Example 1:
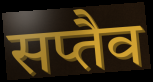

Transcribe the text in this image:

सप्तैव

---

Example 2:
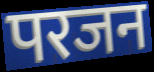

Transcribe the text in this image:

परजन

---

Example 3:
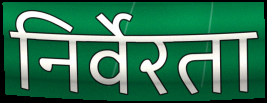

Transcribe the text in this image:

निर्वेरता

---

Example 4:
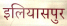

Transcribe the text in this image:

इलियासपुर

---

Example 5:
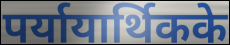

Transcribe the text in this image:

पर्यायार्थिकके